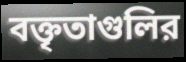
বক্তৃতাগুলির